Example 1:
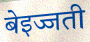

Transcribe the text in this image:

बेइज्‍जती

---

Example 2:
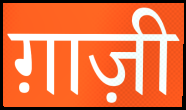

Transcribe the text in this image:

ग़ाज़ी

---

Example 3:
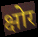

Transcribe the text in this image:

क्षोर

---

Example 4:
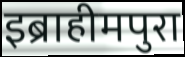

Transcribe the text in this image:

इब्राहीमपुरा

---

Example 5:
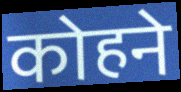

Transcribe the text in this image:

कोहने